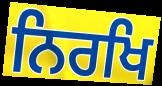
ਨਿਰਖਿ